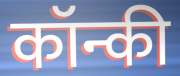
कॉन्की